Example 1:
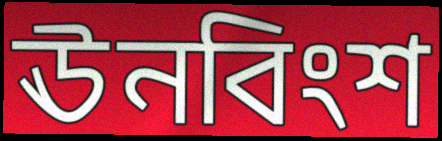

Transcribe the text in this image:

ঊনবিংশ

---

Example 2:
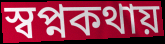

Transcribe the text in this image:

স্বপ্নকথায়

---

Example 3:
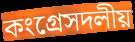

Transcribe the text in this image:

কংগ্রেসদলীয়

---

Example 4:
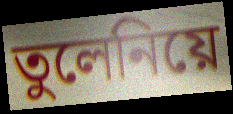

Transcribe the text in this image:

তুলেনিয়ে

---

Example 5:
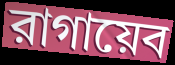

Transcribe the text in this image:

রাগায়েব